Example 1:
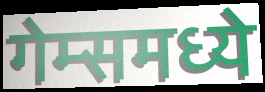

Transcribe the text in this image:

गेम्समध्ये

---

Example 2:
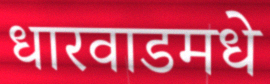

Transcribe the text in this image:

धारवाडमधे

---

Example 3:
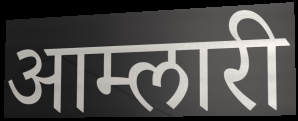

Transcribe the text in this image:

आम्लारी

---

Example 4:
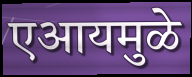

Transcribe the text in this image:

एआयमुळे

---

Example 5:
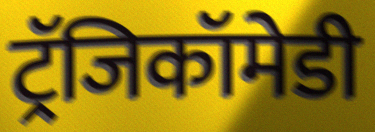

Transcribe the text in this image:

ट्रॅजिकॉमेडी